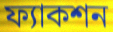
ফ্যাকশন